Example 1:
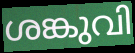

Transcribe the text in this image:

ശങ്കുവി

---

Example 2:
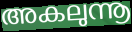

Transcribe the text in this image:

അകലുന്നൂ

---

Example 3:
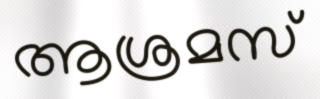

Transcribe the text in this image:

ആശ്രമസ്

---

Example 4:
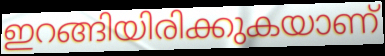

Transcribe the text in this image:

ഇറങ്ങിയിരിക്കുകയാണ്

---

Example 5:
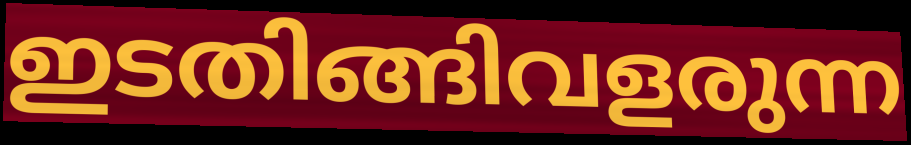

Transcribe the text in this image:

ഇടതിങ്ങിവളരുന്ന